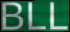
BLL